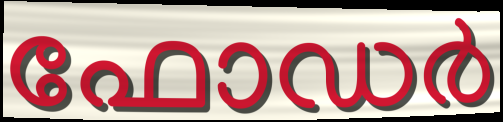
ഫോഡർ